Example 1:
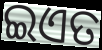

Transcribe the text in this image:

ଇଏତ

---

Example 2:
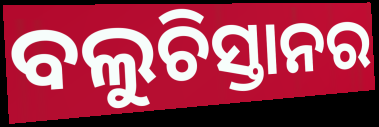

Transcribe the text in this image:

ବଲୁଚିସ୍ତାନର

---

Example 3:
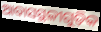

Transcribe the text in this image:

ଆବାସସ୍ଥଳୀଗୁଡ଼ିକ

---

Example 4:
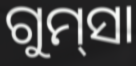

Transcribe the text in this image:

ଗୁମ୍‌ସା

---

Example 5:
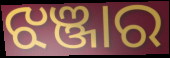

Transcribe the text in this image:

ଝଞ୍ଜାର